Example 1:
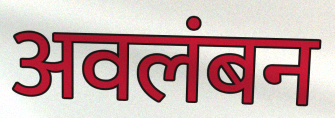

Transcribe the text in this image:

अवलंबन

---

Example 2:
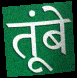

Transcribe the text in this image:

तूंबे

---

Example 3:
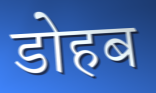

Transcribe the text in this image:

डोहब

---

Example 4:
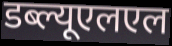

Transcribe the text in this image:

डब्ल्यूएलएल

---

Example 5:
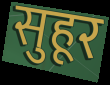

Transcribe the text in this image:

सुहूर